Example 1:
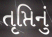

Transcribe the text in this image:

તૃપ્તિનું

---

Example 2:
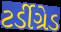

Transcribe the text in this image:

ટર્ડીગ્રેડ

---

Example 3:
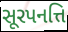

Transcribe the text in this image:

સૂરપનત્તિ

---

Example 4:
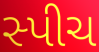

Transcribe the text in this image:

સ્પીચ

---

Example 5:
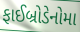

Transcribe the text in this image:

ફાઈબ્રોડેનોમા